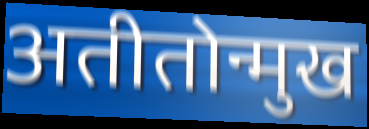
अतीतोन्मुख